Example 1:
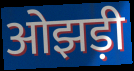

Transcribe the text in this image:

ओझड़ी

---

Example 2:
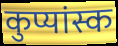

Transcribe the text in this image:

कुप्यांस्क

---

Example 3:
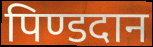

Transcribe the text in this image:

पिण्डदान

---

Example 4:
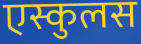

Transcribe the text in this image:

एस्कुलस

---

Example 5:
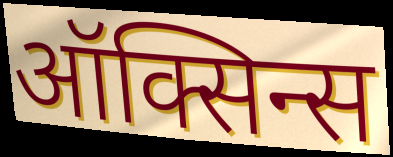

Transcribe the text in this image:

ऑक्सिन्स